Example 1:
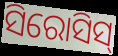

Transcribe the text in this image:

ସିରୋସିସ୍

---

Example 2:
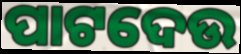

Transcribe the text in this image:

ପାଟଦେଉ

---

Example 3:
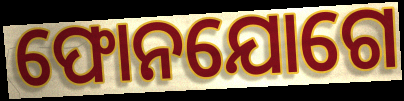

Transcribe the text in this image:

ଫୋନଯୋଗେ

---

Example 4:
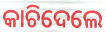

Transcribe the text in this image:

କାଚିଦେଲେ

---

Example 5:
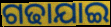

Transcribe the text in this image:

ଗଢାଯାଇ